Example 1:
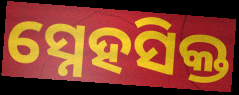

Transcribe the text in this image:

ସ୍ନେହସିକ୍ତ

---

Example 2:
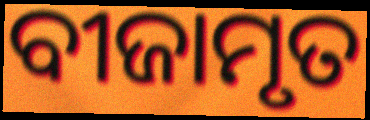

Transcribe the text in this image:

ବୀଜାମୃତ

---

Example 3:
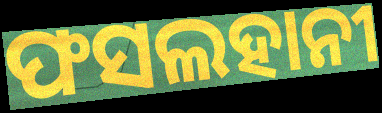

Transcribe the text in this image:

ଫସଲହାନୀ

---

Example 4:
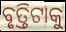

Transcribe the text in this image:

ବୃତ୍ତିଟାକୁ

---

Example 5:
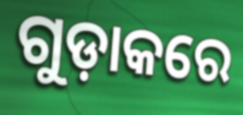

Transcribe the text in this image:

ଗୁଡ଼ାକରେ